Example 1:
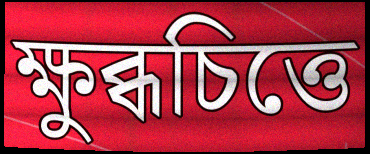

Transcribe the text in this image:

ক্ষুব্ধচিত্তে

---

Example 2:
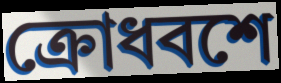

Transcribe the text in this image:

ক্রোধবশে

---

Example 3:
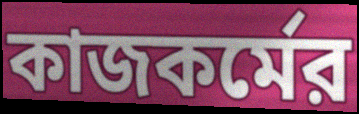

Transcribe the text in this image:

কাজকর্মের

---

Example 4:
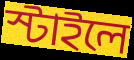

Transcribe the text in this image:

স্টাইলে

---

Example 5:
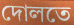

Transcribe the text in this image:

দোলতে